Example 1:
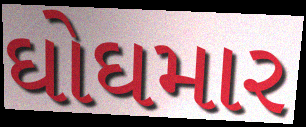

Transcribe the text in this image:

ઘોઘમાર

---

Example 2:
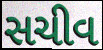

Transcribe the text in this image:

સચીવ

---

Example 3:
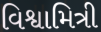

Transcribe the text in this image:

વિશ્વામિત્રી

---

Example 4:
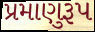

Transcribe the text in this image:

પ્રમાણુરૂપ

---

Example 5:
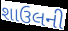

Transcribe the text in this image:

શાઉલની